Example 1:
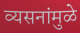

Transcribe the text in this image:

व्यसनांमुळे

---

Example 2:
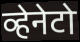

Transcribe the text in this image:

व्हेनेटो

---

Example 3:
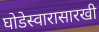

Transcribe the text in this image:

घोडेस्वारासारखी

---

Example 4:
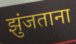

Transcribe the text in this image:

झुंजताना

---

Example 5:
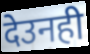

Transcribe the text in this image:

देउनही